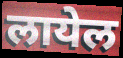
लायेल